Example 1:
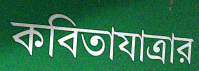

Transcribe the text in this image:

কবিতাযাত্রার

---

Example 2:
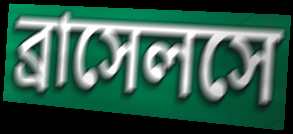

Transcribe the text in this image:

ব্রাসেলসে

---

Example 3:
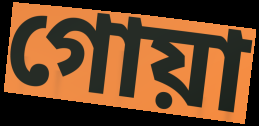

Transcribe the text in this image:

গোয়া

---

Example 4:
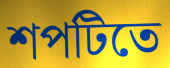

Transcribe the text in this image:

শপটিতে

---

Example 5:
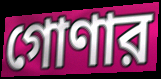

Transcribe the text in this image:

গোণার